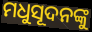
ମଧୁସୂଦନଙ୍କୁ